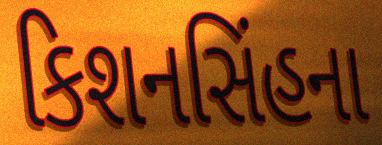
કિશનસિંહના